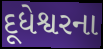
દૂધેશ્વરના